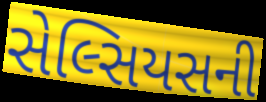
સેલ્સિયસની